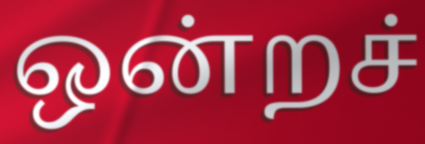
ஒன்றச்